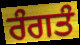
ਰੰਗਤੰ